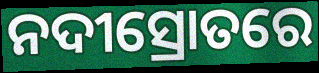
ନଦୀସ୍ରୋତରେ